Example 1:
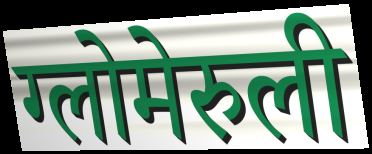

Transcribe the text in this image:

ग्लोमेरुली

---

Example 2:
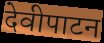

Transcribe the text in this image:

देवीपाटन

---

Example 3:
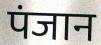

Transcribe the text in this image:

पंजान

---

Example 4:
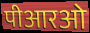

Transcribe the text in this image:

पीआरओ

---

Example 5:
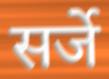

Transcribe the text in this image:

सर्जे